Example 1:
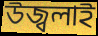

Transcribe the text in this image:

উজ্বলাই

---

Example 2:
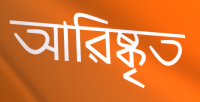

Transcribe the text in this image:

আৱিষ্কৃত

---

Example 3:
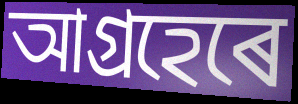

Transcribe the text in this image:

আগ্ৰহেৰে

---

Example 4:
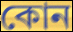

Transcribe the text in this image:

কোন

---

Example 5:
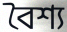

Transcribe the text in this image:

বৈশ্য